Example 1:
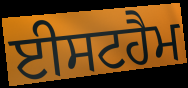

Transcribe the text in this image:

ਈਸਟਹੈਮ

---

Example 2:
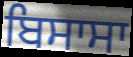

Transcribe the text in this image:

ਬਿਸਾਸਾ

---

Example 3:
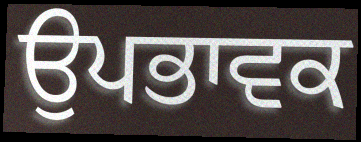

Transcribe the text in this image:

ਉਪਭਾਵਕ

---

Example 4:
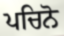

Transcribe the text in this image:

ਪਚਿਨੋ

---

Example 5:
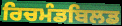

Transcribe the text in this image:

ਰਿਚਮੰਡਬਿਲਡ